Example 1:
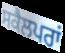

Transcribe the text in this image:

ਸਕੈਲਪਰਾਂ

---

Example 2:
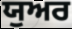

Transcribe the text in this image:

ਯੁਅਰ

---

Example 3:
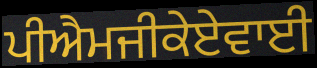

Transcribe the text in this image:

ਪੀਐਮਜੀਕੇਏਵਾਈ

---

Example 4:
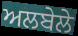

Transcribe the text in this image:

ਅਲਬੇਲੇ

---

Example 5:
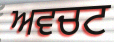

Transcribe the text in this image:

ਅਵਚਟ